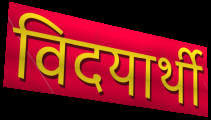
विदयार्थी